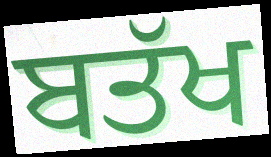
ਬਤੱਖ